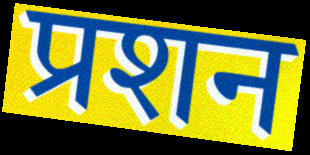
प्रशन